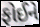
ફોઈને